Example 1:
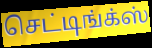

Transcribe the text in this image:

செட்டிங்க்ஸ்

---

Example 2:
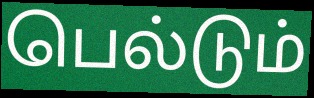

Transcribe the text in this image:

பெல்டும்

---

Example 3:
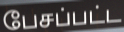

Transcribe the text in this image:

பேசப்பட்ட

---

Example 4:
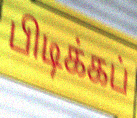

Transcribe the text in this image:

பிடிக்கப்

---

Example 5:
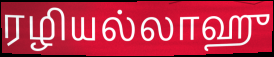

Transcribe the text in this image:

ரழியல்லாஹு